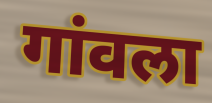
गांवला